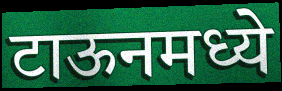
टाऊनमध्ये